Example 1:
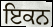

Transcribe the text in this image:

ਇਕਨ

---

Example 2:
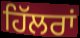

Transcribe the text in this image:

ਹਿੱਲਰਾਂ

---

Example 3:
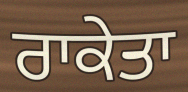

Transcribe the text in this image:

ਰਾਕੇਤਾ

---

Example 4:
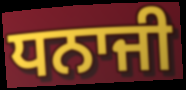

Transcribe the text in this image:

ਧਨਾਜੀ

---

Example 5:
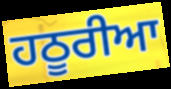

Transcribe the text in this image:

ਹਠੂਰੀਆ